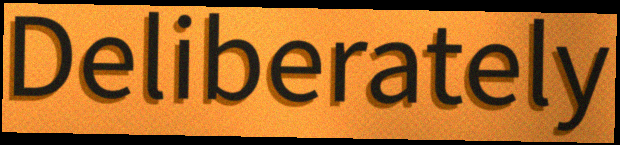
Deliberately